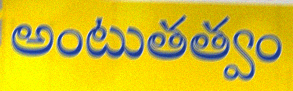
అంటుతత్వం